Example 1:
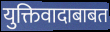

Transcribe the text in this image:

युक्तिवादाबाबत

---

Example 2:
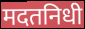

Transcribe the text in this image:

मदतनिधी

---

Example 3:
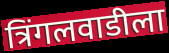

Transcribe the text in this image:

त्रिंगलवाडीला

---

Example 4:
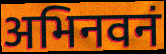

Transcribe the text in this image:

अभिनवनं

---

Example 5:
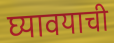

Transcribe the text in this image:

घ्यावयाची